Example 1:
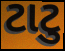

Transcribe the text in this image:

ટાટુ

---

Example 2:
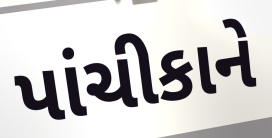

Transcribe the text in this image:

પાંચીકાને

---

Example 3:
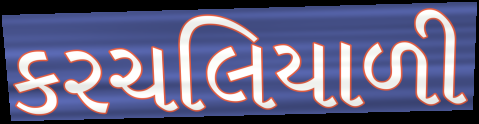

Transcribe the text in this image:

કરચલિયાળી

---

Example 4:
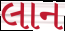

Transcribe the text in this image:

લાન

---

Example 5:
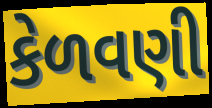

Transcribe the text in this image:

કેળવણી